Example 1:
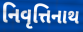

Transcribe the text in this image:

નિવૃત્તિનાથ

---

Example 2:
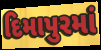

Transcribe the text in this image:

દિમાપુરમાં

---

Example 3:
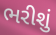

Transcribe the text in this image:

ભરીશું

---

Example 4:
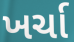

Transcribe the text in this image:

ખર્ચા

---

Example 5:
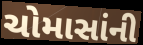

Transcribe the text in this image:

ચોમાસાંની